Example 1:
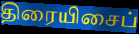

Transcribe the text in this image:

திரையிசைப்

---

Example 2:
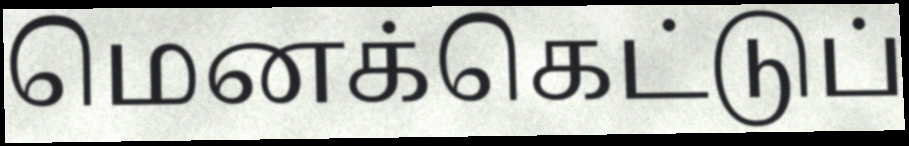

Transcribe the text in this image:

மெனக்கெட்டுப்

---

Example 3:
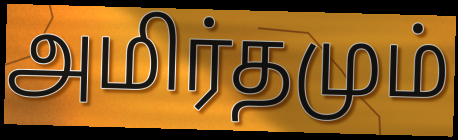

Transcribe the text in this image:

அமிர்தமும்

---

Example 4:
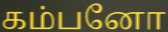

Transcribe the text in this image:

கம்பனோ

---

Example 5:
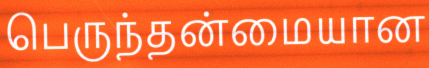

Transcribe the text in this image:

பெருந்தன்மையான